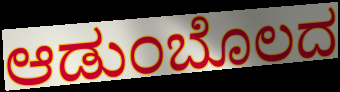
ಆಡುಂಬೊಲದ